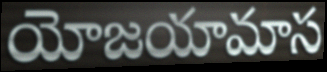
యోజయామాస